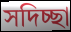
সদিচ্ছা